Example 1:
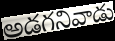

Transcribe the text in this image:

అడగనివాడు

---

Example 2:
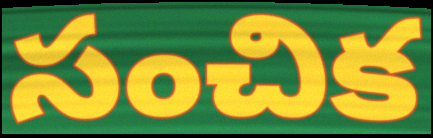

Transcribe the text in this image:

సంచిక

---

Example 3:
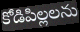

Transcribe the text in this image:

కోడిపిల్లలను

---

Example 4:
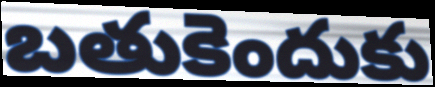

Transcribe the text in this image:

బతుకెందుకు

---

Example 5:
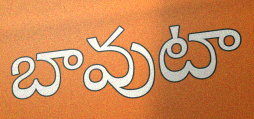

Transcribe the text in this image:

బావుటా